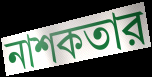
নাশকতার